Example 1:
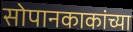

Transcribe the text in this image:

सोपानकाकांच्या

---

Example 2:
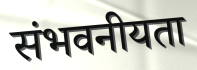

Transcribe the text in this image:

संभवनीयता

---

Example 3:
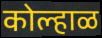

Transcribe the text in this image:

कोल्हाळ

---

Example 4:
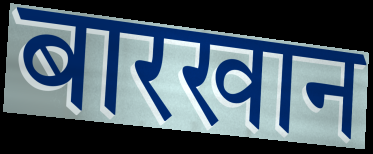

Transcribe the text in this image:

बारखान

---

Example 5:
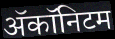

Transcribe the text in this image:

ॲकॉनिटम